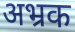
अभ्रक